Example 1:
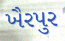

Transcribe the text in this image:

ખૈરપુર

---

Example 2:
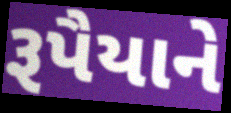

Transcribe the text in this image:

રૂપૈયાને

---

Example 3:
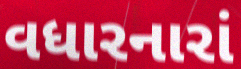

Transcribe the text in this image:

વધારનારાં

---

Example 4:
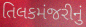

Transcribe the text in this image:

તિલકમંજરીનું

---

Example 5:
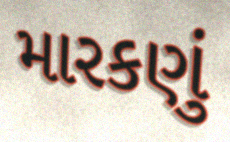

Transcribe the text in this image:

મારકણું